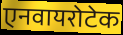
एनवायरोटेक